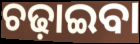
ଚଢ଼ାଇବା